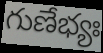
గుణేభ్యః